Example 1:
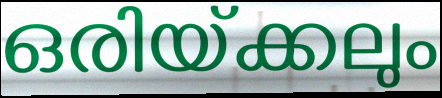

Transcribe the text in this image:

ഒരിയ്‌ക്കലും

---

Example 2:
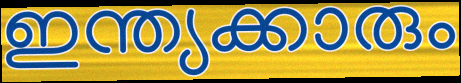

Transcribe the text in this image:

ഇന്ത്യക്കാരും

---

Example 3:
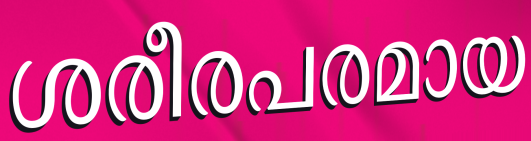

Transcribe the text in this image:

ശരീരപരമായ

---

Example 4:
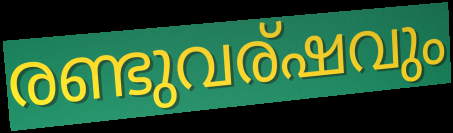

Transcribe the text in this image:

രണ്ടുവര്ഷവും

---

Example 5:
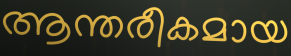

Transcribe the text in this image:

ആന്തരീകമായ